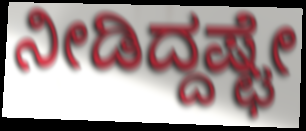
ನೀಡಿದ್ದಷ್ಟೇ